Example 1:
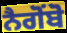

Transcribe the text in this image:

ਨੈਗੋਂਬੋ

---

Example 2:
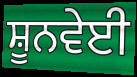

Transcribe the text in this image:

ਸ਼ੂਨਵੇਈ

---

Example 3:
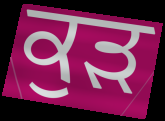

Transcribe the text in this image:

ਕੁੜ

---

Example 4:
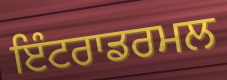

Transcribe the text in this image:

ਇੰਟਰਾਡਰਮਲ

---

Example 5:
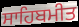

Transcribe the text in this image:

ਸਾਹਿਬਮੀਤ